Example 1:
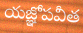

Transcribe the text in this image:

యజ్ఞోపవీత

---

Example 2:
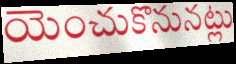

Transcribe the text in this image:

యెంచుకొనునట్లు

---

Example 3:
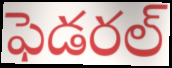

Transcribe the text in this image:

ఫెడరల్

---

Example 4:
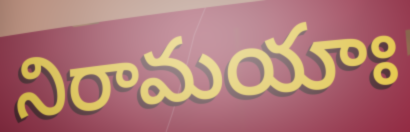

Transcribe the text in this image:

నిరామయాః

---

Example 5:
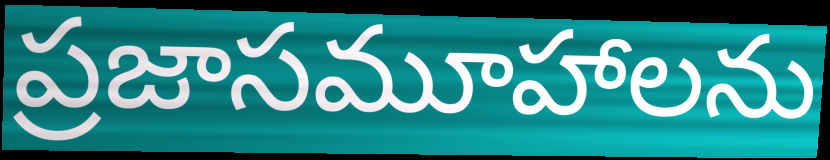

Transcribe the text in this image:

ప్రజాసమూహాలను